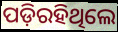
ପଡ଼ିରହିଥିଲେ